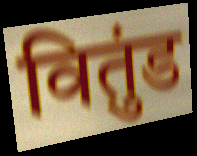
वितुंड